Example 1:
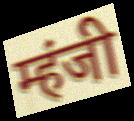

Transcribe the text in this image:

म्हंजी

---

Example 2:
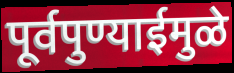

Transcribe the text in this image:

पूर्वपुण्याईमुळे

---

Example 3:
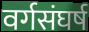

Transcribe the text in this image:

वर्गसंघर्ष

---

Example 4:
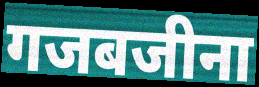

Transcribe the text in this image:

गजबजीना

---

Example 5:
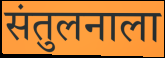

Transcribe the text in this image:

संतुलनाला